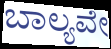
ಬಾಲ್ಯವೇ